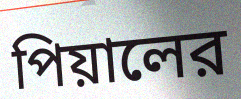
পিয়ালের